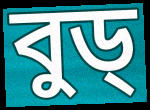
বুড্